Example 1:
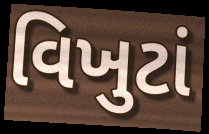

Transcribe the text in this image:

વિખુટાં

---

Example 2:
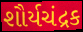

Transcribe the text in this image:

શૌર્યચંદ્રક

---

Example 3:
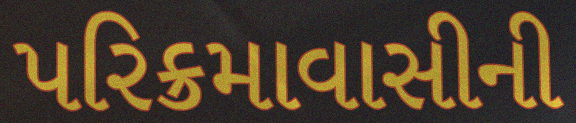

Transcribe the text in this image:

પરિક્રમાવાસીની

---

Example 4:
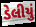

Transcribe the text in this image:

ડેલીયું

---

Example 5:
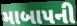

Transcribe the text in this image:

માબાપની